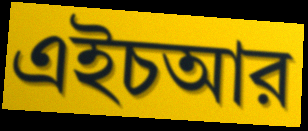
এইচআর